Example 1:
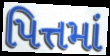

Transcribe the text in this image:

પિત્તમાં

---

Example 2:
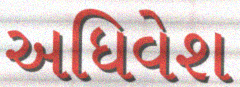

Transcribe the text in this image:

અધિવેશ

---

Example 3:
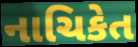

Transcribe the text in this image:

નાચિકેત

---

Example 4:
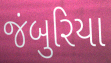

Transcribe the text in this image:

જંબુરિયા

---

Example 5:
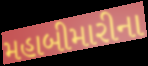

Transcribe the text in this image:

મહાબીમારીના